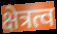
क्षेत्रत्व